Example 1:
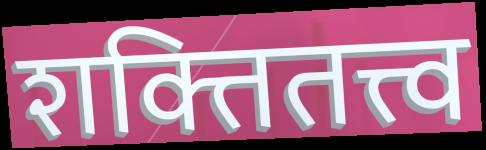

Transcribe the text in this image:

शक्तितत्त्व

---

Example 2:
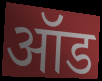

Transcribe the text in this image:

ऑड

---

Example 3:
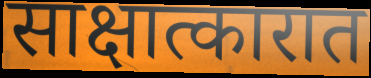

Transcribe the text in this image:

साक्षात्कारात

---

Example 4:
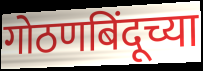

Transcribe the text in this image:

गोठणबिंदूच्या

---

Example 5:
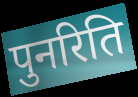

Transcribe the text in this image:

पुनरिति